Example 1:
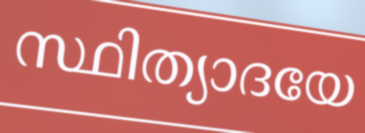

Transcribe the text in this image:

സ്ഥിത്യാദയേ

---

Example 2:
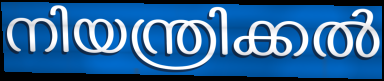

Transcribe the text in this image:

നിയന്ത്രിക്കൽ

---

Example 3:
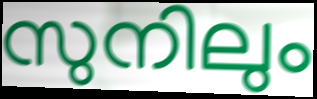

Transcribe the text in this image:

സുനിലും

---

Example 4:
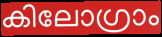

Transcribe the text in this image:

കിലോഗ്രാം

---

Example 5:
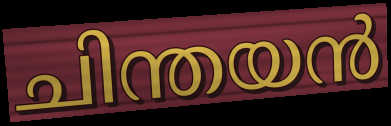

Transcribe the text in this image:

ചിന്തയൻ